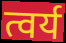
त्वर्य